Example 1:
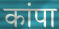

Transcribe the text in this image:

कांपा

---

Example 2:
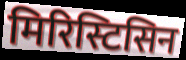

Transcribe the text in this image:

मिरिस्टिसिन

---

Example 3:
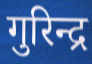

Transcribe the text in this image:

गुरिन्द्र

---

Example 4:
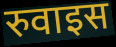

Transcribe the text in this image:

रुवाइस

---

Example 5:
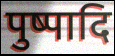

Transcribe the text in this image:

पुष्पादि